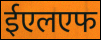
ईएलएफ